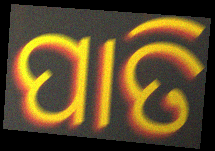
ପାତି